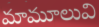
మామూలువి